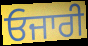
ਓਜਾਰੀ